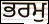
ਭਰਮੁ